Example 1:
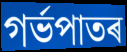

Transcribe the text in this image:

গৰ্ভপাতৰ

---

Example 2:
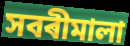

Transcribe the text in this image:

সবৰীমালা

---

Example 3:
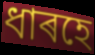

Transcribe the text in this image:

ধাৰহে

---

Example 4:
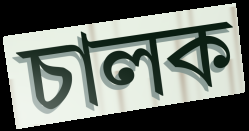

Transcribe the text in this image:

চালক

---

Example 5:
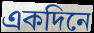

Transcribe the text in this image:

একদিনে